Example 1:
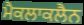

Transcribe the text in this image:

ਮੈਕਲਾਕਲੈਨ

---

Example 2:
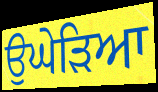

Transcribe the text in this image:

ਉਘੇੜਿਆ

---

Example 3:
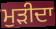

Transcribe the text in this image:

ਮੁੜੀਦਾ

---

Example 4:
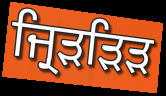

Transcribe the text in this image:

ਜ੍ਰਿੜੜਿੜ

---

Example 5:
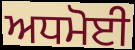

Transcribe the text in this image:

ਅਧਮੋਈ